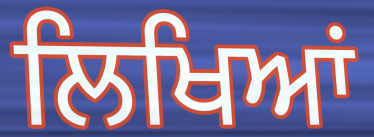
ਲਿਖਿਆਂ